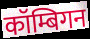
कॉम्बिगन